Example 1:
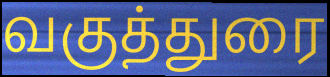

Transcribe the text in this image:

வகுத்துரை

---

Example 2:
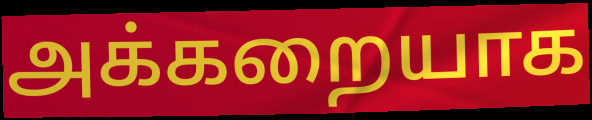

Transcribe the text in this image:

அக்கறையாக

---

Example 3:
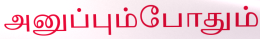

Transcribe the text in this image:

அனுப்பும்போதும்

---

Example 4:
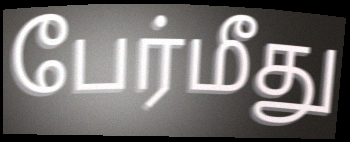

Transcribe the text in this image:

பேர்மீது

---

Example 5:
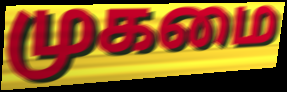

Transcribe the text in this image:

முகமை